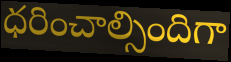
ధరించాల్సిందిగా